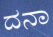
ದನಾ